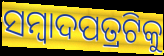
ସମ୍ବାଦପତ୍ରଟିକୁ